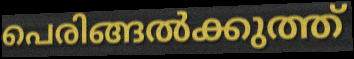
പെരിങ്ങൽക്കുത്ത്